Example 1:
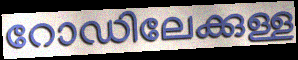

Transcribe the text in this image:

റോഡിലേക്കുള്ള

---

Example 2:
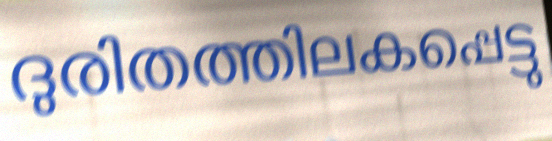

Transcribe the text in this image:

ദുരിതത്തിലകപ്പെട്ടു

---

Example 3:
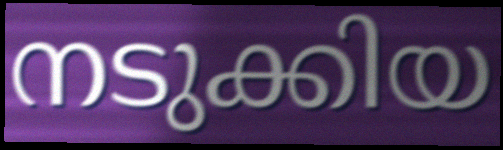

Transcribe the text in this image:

നടുക്കിയ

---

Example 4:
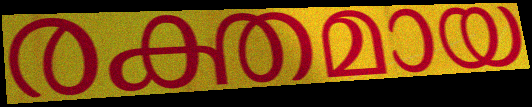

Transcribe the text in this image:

രക്തമായ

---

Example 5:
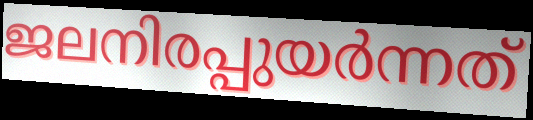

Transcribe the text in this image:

ജലനിരപ്പുയർന്നത്